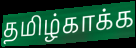
தமிழ்காக்க